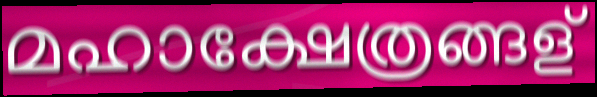
മഹാക്ഷേത്രങ്ങള്